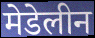
मेडेलीन